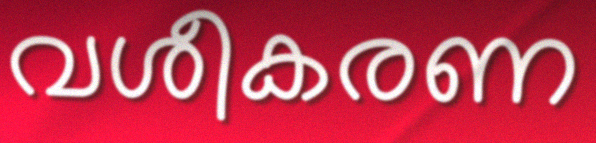
വശീകരണ